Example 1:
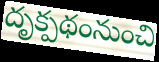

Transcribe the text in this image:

దృక్పథంనుంచి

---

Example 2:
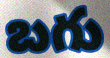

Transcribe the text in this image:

బగు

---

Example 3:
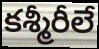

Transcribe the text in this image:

కశ్మీరీలే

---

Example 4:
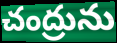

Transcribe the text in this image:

చంద్రును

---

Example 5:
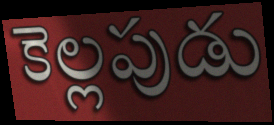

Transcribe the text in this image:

కెల్లపుడు